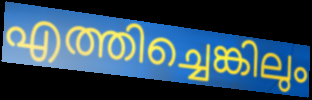
എത്തിച്ചെങ്കിലും